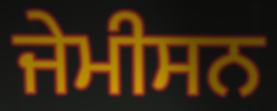
ਜੇਮੀਸਨ